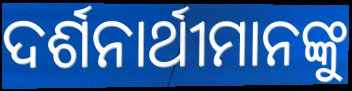
ଦର୍ଶନାର୍ଥୀମାନଙ୍କୁ